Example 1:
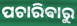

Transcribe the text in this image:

ପଚାରିଵାରୁ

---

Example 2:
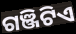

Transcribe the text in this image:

ଗଞ୍ଜିଟିଏ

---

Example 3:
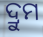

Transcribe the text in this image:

ଦ୍ରୁମ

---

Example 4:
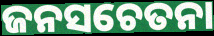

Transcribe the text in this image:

ଜନସଚେତନା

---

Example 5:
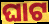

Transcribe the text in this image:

ଘାଟ